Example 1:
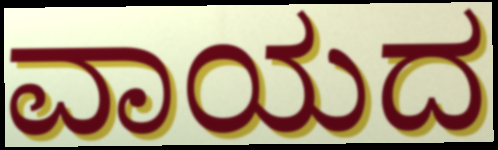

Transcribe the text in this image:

ವಾಯದ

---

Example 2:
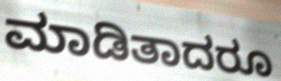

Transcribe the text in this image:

ಮಾಡಿತಾದರೂ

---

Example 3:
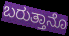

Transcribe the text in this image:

ಬರುತ್ತಾನೊ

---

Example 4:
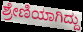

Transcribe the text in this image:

ಶ್ರೇಣಿಯಾಗಿದ್ದು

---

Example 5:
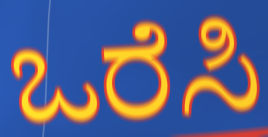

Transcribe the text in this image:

ಒರೆಸಿ